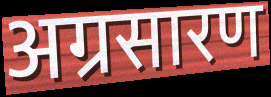
अग्रसारण